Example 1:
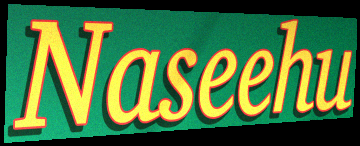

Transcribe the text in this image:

Naseehu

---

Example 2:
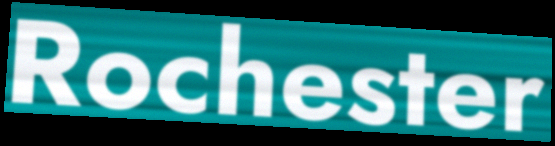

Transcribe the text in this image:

Rochester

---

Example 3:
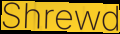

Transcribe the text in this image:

Shrewd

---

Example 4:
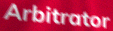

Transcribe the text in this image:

Arbitrator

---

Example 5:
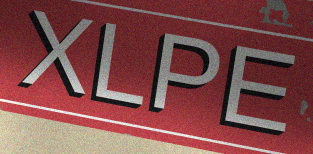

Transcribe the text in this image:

XLPE